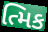
ત્મિક